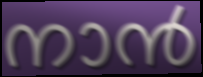
നാൻ